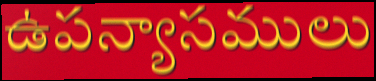
ఉపన్యాసములు